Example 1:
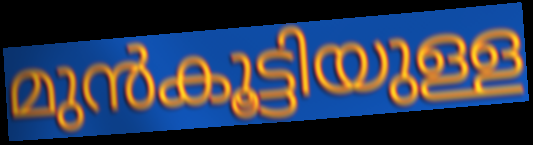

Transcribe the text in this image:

മുൻകൂട്ടിയുള്ള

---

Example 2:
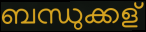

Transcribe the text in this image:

ബന്ധുക്കള്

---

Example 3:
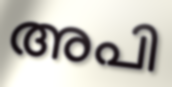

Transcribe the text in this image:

അപി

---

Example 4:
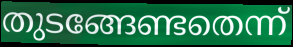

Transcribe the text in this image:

തുടങ്ങേണ്ടതെന്ന്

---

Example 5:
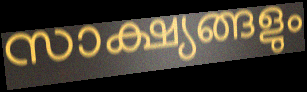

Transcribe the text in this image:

സാക്ഷ്യങ്ങളും